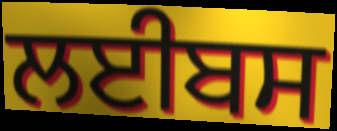
ਲਈਬਸ